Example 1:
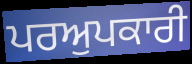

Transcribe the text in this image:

ਪਰਅੁਪਕਾਰੀ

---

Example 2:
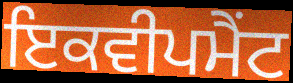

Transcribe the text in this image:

ਇਕਵੀਪਮੈਂਟ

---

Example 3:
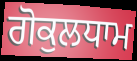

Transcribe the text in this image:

ਗੋਕੁਲਧਾਮ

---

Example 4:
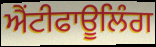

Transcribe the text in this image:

ਐਂਟੀਫਾਊਲਿੰਗ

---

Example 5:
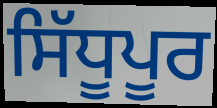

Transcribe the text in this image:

ਸਿੱਧੂਪੂਰ